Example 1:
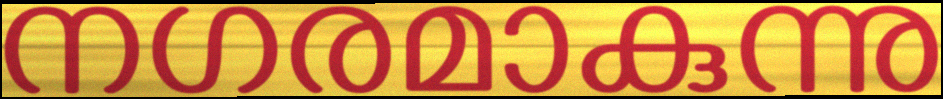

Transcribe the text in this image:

നഗരമാകുന്നു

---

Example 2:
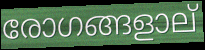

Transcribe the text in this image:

രോഗങ്ങളാല്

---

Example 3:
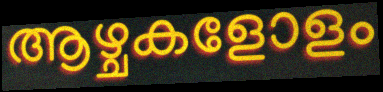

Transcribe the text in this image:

ആഴ്ചകളോളം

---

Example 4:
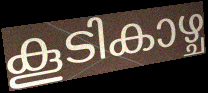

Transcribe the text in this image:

കൂടികാഴ്ച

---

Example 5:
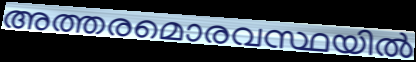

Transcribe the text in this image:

അത്തരമൊരവസ്ഥയിൽ